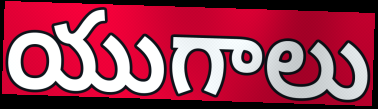
యుగాలు